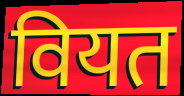
वियत